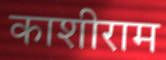
काशीराम